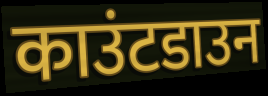
काउंटडाउन